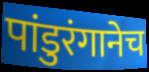
पांडुरंगानेच